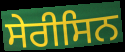
ਸੇਰੀਸਿਨ